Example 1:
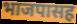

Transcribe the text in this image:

भाजपासह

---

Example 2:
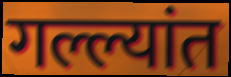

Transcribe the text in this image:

गल्ल्यांत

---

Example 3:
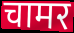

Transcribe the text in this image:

चामर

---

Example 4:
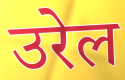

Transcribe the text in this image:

उरेल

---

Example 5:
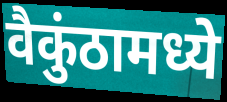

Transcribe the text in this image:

वैकुंठामध्ये